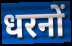
धरनों